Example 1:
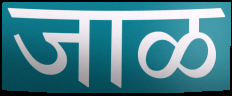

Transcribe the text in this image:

जाळ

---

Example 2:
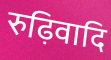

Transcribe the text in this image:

रुढ़िवादि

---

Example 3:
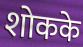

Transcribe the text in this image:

शोकके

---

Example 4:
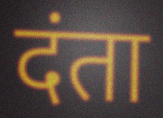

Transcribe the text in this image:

दंता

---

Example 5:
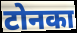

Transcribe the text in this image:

टोनका